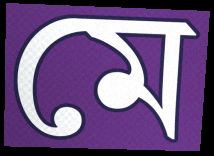
মে